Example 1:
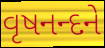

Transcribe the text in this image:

વૃષનન્દને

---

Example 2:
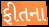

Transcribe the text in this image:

ફીતના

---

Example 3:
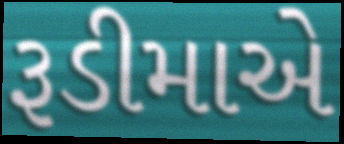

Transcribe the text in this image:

રૂડીમાએ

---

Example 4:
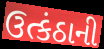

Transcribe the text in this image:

ઉત્કંઠાની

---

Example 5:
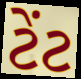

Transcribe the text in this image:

ટેંટ